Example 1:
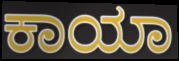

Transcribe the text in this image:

ಕಾಯಾ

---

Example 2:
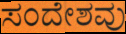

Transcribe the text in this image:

ಸಂದೇಶವು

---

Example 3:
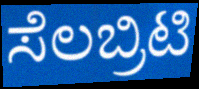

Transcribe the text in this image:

ಸೆಲಬ್ರಿಟಿ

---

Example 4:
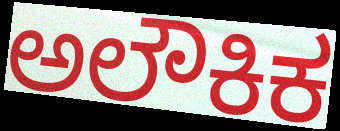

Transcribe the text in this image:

ಅಲೌಕಿಕ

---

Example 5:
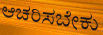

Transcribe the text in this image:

ಆಚರಿಸಬೇಕು